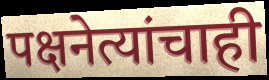
पक्षनेत्यांचाही